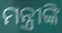
ମନ୍ତ୍ରୀଙ୍କି